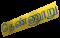
தெண்ணூறு